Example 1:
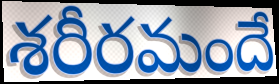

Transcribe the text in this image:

శరీరమందే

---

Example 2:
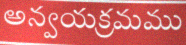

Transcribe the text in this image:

అన్వయక్రమము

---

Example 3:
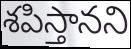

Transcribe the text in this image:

శపిస్తానని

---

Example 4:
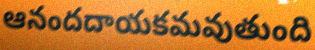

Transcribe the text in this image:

ఆనందదాయకమవుతుంది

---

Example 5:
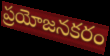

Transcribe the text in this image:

ప్రయోజనకరం